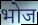
भोज